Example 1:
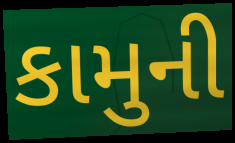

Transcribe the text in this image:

કામુની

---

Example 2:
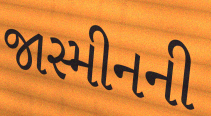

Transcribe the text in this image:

જાસ્મીનની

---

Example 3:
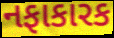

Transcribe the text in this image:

નફાકારક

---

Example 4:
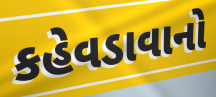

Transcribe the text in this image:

કહેવડાવાનો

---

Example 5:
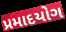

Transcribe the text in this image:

પ્રમાદયોગ